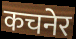
कचनेर